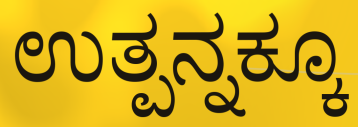
ಉತ್ಪನ್ನಕ್ಕೂ